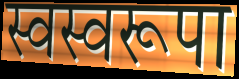
स्वस्वरूपा